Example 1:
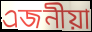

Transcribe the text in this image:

এজনীয়া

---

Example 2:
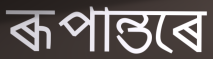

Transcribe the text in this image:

ৰূপান্তৰে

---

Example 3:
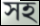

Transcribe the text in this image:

সহ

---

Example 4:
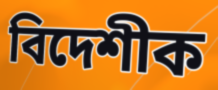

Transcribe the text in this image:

বিদেশীক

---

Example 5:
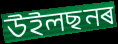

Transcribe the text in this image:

উইলছনৰ